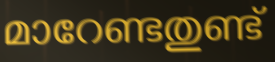
മാറേണ്ടതുണ്ട്